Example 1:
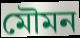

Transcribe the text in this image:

মৌমন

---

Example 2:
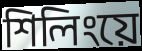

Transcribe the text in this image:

শিলিংয়ে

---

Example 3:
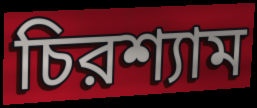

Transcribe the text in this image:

চিরশ্যাম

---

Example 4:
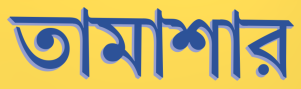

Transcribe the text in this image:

তামাশার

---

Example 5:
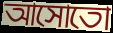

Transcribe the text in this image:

আসোতো